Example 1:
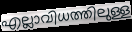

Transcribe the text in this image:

എല്ലാവിധത്തിലുള്ള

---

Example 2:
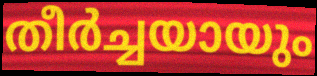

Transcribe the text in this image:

തീർച്ചയായും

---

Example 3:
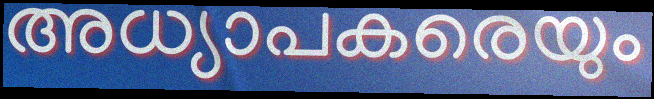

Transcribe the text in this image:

അധ്യാപകരെയും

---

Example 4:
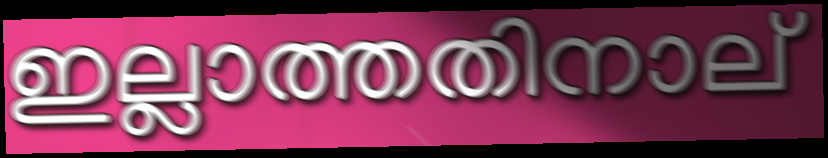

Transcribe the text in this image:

ഇല്ലാത്തതിനാല്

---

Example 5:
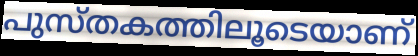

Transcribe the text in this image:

പുസ്തകത്തിലൂടെയാണ്